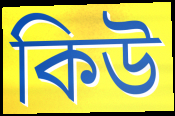
কিউ